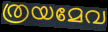
ത്രയമേവ